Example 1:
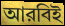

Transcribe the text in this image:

আরবিই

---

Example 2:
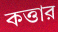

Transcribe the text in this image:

কত্তার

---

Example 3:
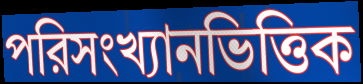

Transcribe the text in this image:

পরিসংখ্যানভিত্তিক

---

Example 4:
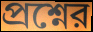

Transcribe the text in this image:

প্রশ্নের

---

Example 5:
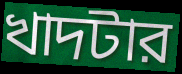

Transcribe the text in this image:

খাদটার